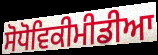
ਸੋਧੋਵਿਕੀਮੀਡੀਆ